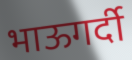
भाऊगर्दी